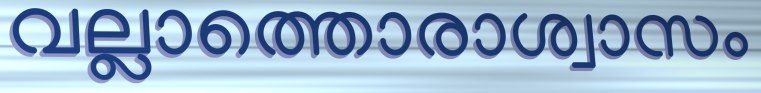
വല്ലാത്തൊരാശ്വാസം